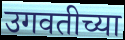
उगवतीच्या